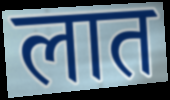
लात